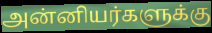
அன்னியர்களுக்கு